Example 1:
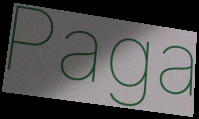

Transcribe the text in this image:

Paga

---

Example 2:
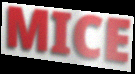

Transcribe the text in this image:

MICE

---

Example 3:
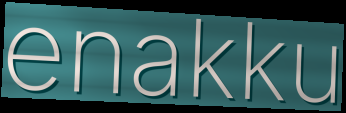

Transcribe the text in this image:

enakku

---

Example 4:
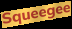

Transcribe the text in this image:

Squeegee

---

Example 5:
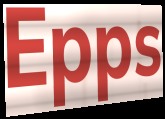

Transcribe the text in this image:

Epps